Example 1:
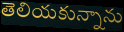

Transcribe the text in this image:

తెలియకున్నాను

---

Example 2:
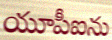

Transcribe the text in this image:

యూపీఐను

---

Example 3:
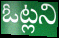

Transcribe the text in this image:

ఓట్లని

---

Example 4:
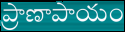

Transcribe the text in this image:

ప్రాణాపాయం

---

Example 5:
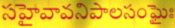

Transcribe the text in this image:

సహైవావనిపాలసంఘైః